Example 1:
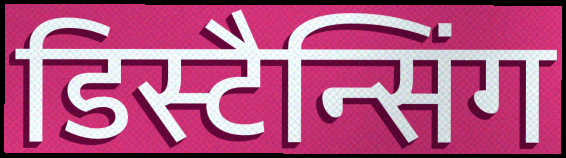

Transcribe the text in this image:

डिस्टैन्सिंग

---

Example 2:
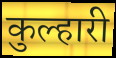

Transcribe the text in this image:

कुल्हारी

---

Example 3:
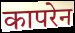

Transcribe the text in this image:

कापरेन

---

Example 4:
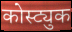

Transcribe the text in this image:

कोस्ट्युक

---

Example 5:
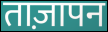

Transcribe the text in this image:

ताज़ापन